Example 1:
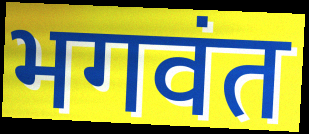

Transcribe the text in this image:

भगवंत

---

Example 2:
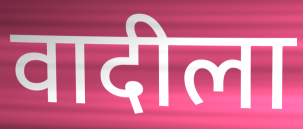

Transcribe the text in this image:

वादीला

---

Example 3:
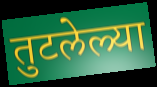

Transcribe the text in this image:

तुटलेल्या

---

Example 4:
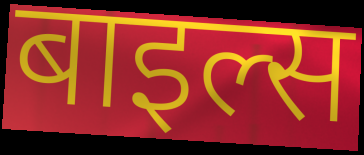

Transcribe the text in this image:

बाइल्स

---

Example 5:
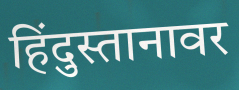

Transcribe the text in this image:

हिंदुस्तानावर